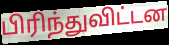
பிரிந்துவிட்டன